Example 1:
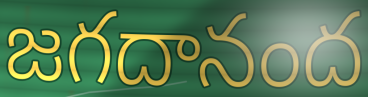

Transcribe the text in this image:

జగదానంద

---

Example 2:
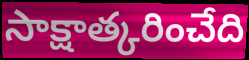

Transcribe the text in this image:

సాక్షాత్కరించేది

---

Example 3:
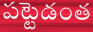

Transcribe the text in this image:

పట్టెడంత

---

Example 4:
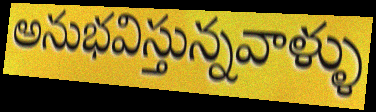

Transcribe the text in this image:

అనుభవిస్తున్నవాళ్ళు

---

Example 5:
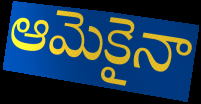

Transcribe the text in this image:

ఆమెకైనా